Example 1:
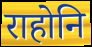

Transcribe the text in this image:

राहोनि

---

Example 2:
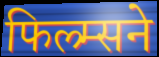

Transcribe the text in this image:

फिल्म्सने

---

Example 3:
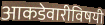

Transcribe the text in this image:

आकडेवारीविषयी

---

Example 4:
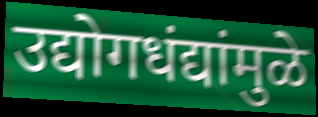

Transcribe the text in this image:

उद्योगधंद्यांमुळे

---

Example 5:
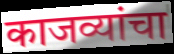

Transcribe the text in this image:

काजव्यांचा